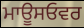
ਮਾਊਸਓਵਰ